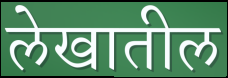
लेखातील